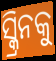
ସ୍କ୍ରିନକୁ